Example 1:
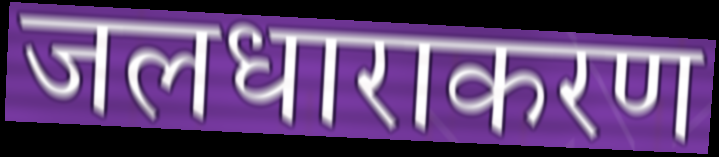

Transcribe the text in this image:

जलधाराकरण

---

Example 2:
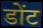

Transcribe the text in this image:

डोंट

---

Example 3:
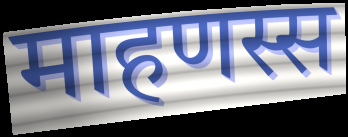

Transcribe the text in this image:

माहणस्स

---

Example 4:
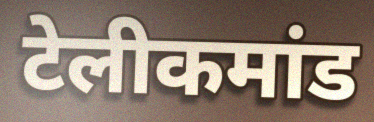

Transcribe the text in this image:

टेलीकमांड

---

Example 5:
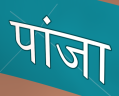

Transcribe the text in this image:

पांजा